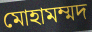
মোহামম্মদ